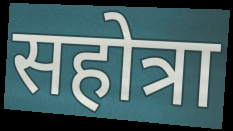
सहोत्रा